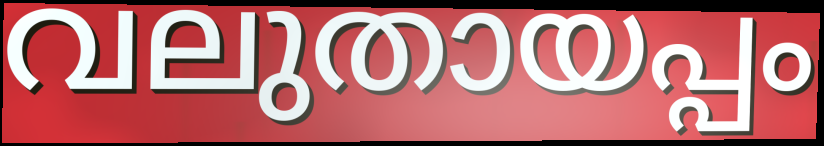
വലുതായപ്പം